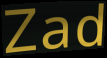
Zad